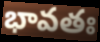
భావతః